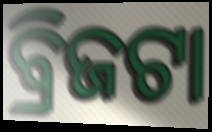
ବ୍ରିଜଟା